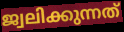
ജ്വലിക്കുന്നത്